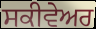
ਸਕੀਵੇਅਰ